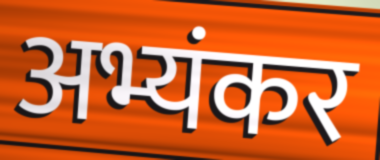
अभ्यंकर